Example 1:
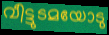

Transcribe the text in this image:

വീട്ടുടമയോടു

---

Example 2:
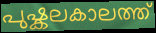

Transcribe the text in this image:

പുഷ്കലകാലത്ത്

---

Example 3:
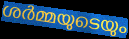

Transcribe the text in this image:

ശർമ്മയുടെയും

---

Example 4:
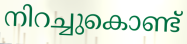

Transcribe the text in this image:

നിറച്ചുകൊണ്ട്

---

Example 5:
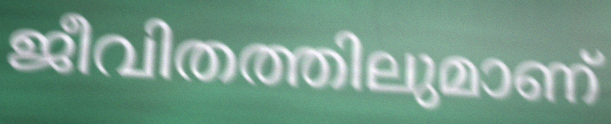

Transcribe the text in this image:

ജീവിതത്തിലുമാണ്